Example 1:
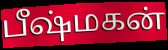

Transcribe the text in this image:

பீஷ்மகன்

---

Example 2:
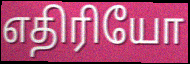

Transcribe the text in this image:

எதிரியோ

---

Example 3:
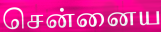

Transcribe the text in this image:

சென்னைய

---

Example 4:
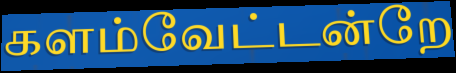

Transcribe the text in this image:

களம்வேட்டன்றே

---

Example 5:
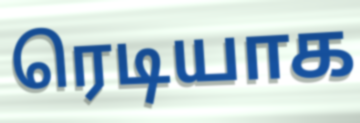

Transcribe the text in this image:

ரெடியாக